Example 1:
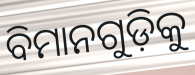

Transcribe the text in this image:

ବିମାନଗୁଡ଼ିକୁ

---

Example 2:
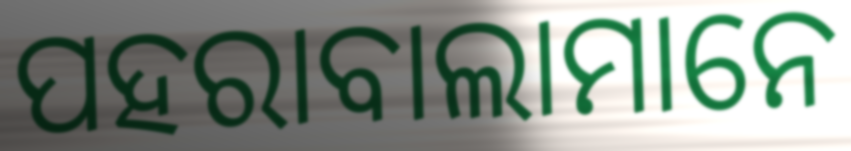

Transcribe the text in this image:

ପହରାବାଲାମାନେ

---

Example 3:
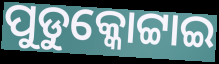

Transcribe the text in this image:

ପୁଡୁକ୍କୋଟ୍ଟାଇ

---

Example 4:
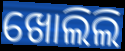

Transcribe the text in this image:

ଖୋଲିଲି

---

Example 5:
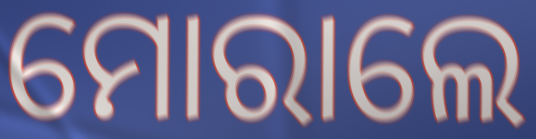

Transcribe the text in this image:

ମୋରାଲେ